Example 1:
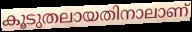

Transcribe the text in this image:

കൂടുതലായതിനാലാണ്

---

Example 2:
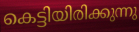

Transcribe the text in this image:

കെട്ടിയിരിക്കുന്നു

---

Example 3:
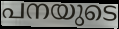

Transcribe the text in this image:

പനയുടെ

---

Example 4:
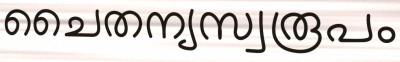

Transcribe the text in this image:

ചൈതന്യസ്വരൂപം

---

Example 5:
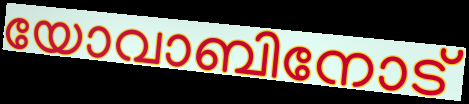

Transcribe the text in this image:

യോവാബിനോട്